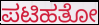
ಪಟಿಹತೋ